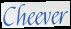
Cheever